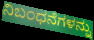
ನಿಬಂಧನೆಗಳನ್ನು